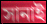
সানাই